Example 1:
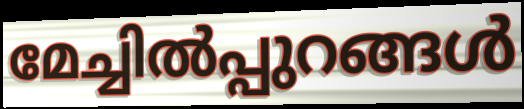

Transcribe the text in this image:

മേച്ചിൽപ്പുറങ്ങൾ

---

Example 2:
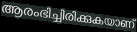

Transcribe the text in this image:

ആരംഭിച്ചിരിക്കുകയാണ്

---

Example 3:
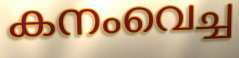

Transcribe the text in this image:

കനംവെച്ച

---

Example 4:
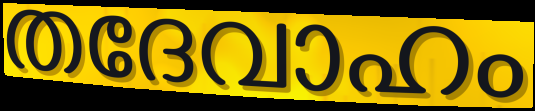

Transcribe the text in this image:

തദേവാഹം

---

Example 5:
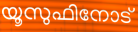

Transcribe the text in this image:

യൂസുഫിനോട്